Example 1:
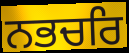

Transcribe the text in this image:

ਨਭਚਰਿ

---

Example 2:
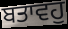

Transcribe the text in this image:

ਬਤਾਵਹੁ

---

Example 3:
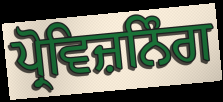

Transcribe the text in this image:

ਪ੍ਰੋਵਿਜ਼ਨਿੰਗ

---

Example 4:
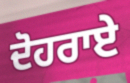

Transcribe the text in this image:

ਦੋਹਰਾਏ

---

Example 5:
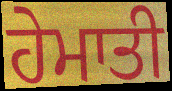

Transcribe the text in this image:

ਹੇਮਾਤੀ